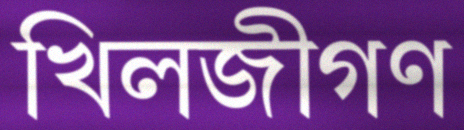
খিলজীগণ